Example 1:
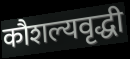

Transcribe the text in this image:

कौशल्यवृद्धी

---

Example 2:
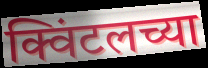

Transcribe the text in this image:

क्विंटलच्या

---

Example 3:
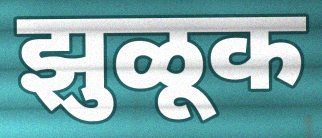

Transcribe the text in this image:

झुळूक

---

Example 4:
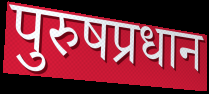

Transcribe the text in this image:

पुरुषप्रधान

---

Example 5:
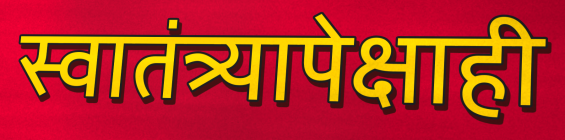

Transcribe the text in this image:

स्वातंत्र्यापेक्षाही